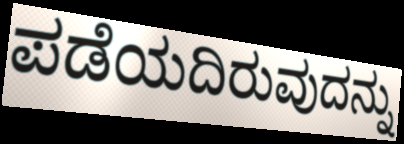
ಪಡೆಯದಿರುವುದನ್ನು